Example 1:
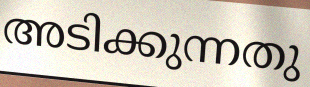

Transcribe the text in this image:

അടിക്കുന്നതു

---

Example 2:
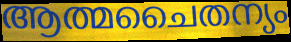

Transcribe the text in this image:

ആത്മചൈതന്യം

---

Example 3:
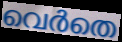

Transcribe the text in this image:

വെർതെ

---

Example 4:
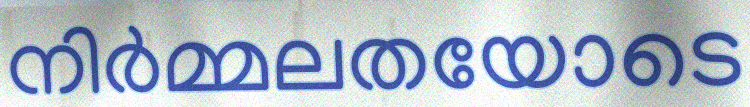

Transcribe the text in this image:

നിർമ്മലതയോടെ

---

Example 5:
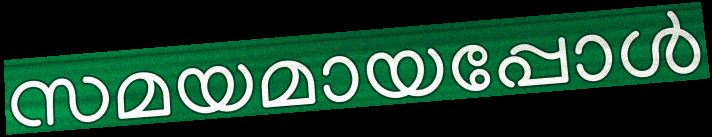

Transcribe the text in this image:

സമയമായപ്പോൾ